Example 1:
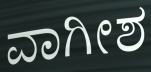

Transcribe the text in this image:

ವಾಗೀಶ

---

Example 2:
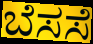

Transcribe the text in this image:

ಬೆಸಸೆ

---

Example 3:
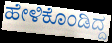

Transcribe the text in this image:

ಹೇಳಿಕೊಂಡಿದ್ದ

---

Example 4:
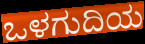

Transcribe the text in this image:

ಒಳಗುದಿಯ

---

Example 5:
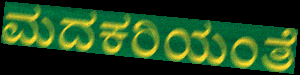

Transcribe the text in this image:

ಮದಕರಿಯಂತೆ